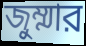
জুম্মার